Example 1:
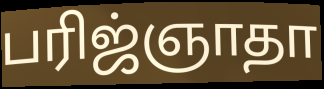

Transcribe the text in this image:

பரிஜ்ஞாதா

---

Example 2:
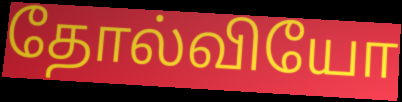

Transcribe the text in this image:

தோல்வியோ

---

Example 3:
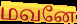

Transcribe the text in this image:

மவனே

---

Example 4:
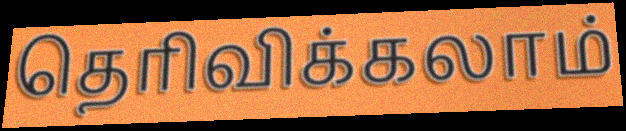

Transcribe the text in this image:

தெரிவிக்கலாம்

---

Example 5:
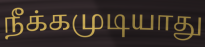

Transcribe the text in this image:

நீக்கமுடியாது